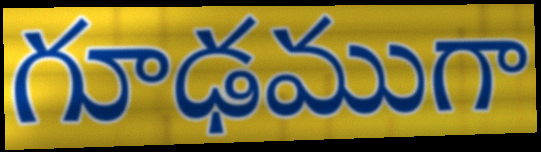
గూఢముగా